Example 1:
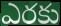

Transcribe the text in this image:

ఎరకు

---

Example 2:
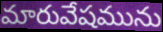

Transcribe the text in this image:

మారువేషమును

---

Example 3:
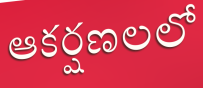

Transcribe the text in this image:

ఆకర్షణలలో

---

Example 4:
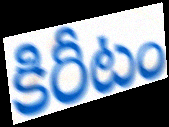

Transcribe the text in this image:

కిరీటం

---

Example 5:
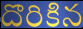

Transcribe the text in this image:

దొరికిన